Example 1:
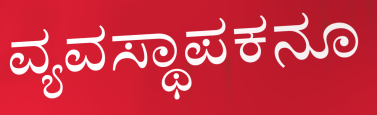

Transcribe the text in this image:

ವ್ಯವಸ್ಥಾಪಕನೂ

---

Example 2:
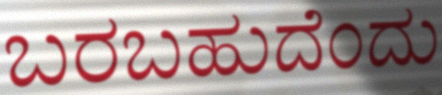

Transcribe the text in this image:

ಬರಬಹುದೆಂದು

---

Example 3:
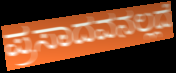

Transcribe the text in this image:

ಪ್ರಸಾದವನಲ್ಲದೆ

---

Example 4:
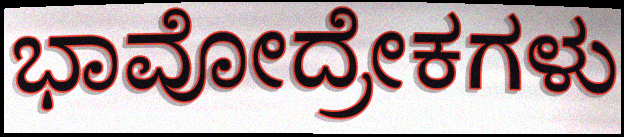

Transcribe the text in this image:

ಭಾವೋದ್ರೇಕಗಳು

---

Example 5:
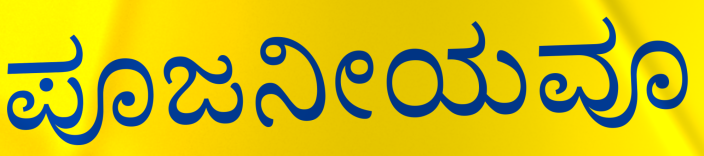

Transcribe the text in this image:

ಪೂಜನೀಯವೂ